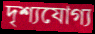
দৃশ্যযোগ্য